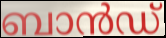
ബാൻഡ്